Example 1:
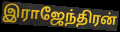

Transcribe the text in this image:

இராஜேந்திரன்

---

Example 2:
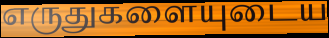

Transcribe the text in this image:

எருதுகளையுடைய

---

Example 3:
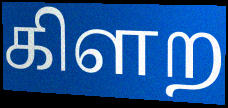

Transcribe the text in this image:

கிளற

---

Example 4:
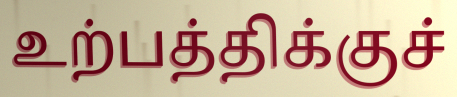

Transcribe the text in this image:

உற்பத்திக்குச்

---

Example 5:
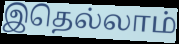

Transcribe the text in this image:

இதெல்லாம்